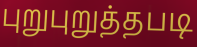
புறுபுறுத்தபடி